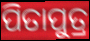
ପିତାପୁତ୍ର